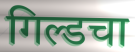
गिल्डचा